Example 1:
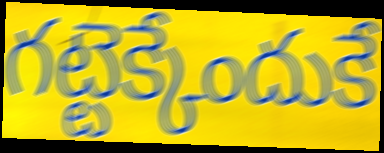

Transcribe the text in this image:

గట్టెక్కేందుకే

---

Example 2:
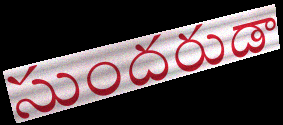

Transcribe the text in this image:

సుందరుడా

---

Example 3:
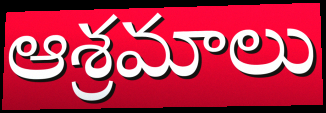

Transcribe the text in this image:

ఆశ్రమాలు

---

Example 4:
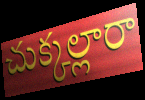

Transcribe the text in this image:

చుక్కల్లారా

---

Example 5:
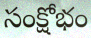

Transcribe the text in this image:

సంక్షోభం